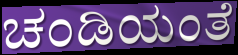
ಚಂಡಿಯಂತೆ